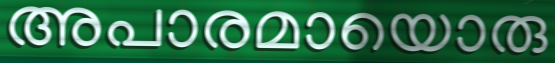
അപാരമായൊരു